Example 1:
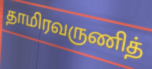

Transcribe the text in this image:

தாமிரவருணித்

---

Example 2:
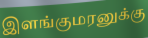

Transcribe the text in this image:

இளங்குமரனுக்கு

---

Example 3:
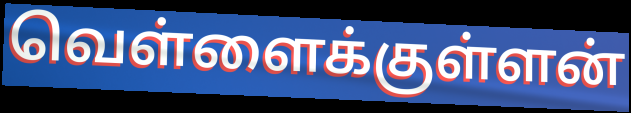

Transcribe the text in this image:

வெள்ளைக்குள்ளன்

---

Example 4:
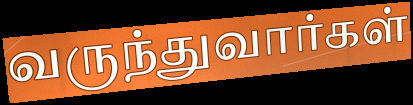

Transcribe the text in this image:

வருந்துவார்கள்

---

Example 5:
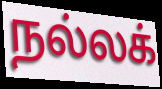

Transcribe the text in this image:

நல்லக்